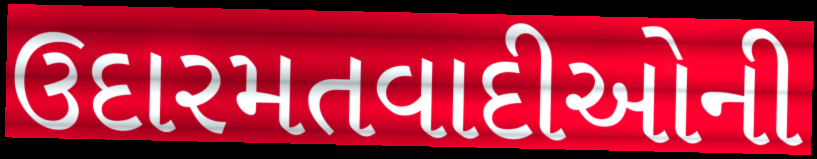
ઉદારમતવાદીઓની